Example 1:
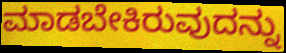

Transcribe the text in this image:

ಮಾಡಬೇಕಿರುವುದನ್ನು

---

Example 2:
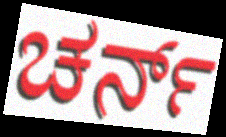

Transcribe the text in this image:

ಚರ್ನ್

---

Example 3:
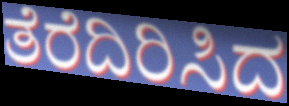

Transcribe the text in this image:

ತೆರೆದಿರಿಸಿದ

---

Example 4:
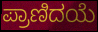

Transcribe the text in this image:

ಪ್ರಾಣಿದಯೆ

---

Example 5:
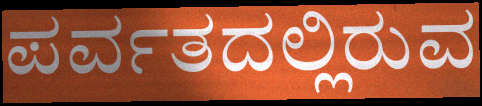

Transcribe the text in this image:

ಪರ್ವತದಲ್ಲಿರುವ